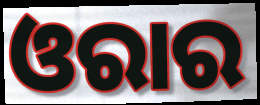
ଓରାର